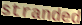
stranded